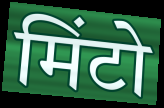
मिंटो